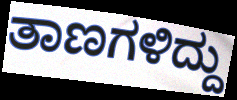
ತಾಣಗಳಿದ್ದು